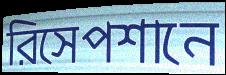
রিসেপশানে